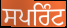
ਸਪਰਿੰਟ